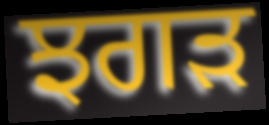
ਝਗੜ